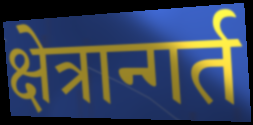
क्षेत्रान्गर्त